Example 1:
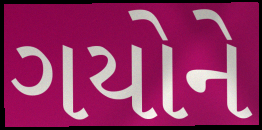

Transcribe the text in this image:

ગયોને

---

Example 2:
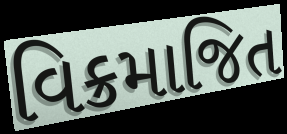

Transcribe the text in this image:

વિક્રમાજિત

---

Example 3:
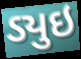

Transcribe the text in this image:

ડ્યુઇ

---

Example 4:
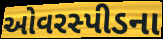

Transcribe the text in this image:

ઓવરસ્પીડના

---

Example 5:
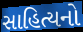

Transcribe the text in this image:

સાહિત્યનો